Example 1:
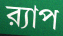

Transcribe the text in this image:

র‍্যাপ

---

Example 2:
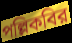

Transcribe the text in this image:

পল্লিকবির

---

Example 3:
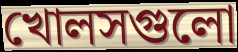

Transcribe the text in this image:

খোলসগুলো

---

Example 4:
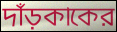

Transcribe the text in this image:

দাঁড়কাকের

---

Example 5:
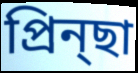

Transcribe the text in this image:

প্রিন্ছা